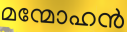
മന്മോഹൻ